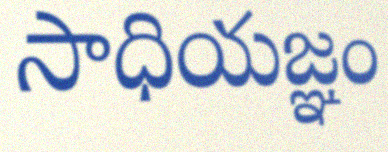
సాధియజ్ఞం